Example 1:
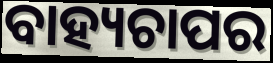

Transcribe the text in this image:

ବାହ୍ୟଚାପର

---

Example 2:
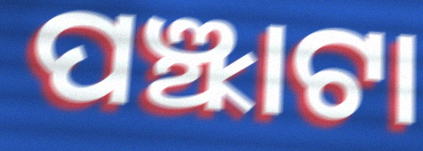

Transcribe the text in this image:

ପଞ୍ଝାଟା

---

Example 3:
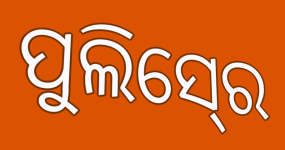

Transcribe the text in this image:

ପୁଲିସ୍‍ରେ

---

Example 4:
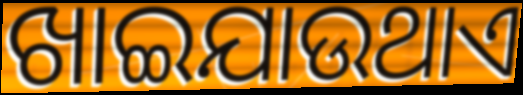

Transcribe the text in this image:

ଖାଇଯାଉଥାଏ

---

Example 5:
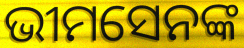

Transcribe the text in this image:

ଭୀମସେନଙ୍କ